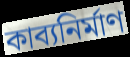
কাব্যনির্মাণ